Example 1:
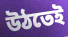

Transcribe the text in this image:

উঠতেই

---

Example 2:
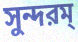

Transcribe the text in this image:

সুন্দরম্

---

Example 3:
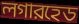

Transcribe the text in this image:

লগারহেড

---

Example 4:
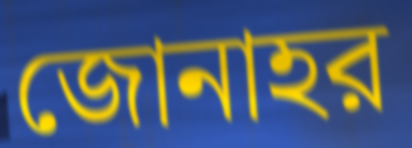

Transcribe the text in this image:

জোনাহর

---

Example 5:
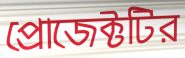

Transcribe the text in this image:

প্রোজেক্টটির